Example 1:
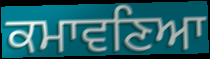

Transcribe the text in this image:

ਕਮਾਵਣਿਆ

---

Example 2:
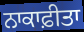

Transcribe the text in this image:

ਨਾਕਾਫ਼ੀਤਾ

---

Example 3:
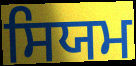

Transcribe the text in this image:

ਸਿਯਮ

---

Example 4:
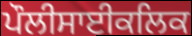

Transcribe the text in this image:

ਪੌਲੀਸਾਈਕਲਿਕ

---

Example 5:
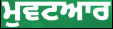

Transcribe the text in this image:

ਮੁਵਟਆਰ